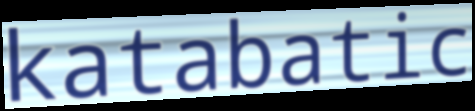
katabatic